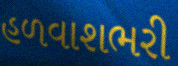
હળવાશભરી